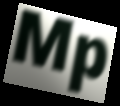
Mp